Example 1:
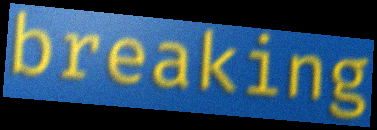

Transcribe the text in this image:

breaking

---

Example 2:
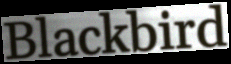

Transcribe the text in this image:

Blackbird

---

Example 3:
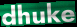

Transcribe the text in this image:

dhuke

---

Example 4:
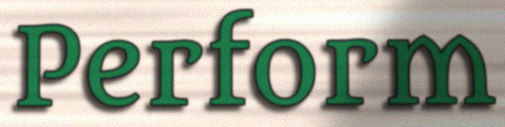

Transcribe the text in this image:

Perform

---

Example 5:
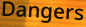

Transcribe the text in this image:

Dangers